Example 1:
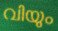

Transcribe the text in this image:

വിയും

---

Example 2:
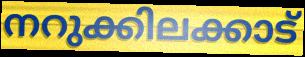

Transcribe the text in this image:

നറുക്കിലക്കാട്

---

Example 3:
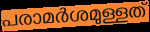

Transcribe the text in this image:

പരാമർശമുള്ളത്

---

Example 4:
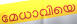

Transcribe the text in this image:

മേധാവിയെ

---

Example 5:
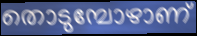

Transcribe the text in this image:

തൊടുമ്പോഴാണ്